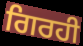
ਗਿਰਹੀ